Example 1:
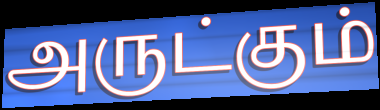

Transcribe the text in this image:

அருட்கும்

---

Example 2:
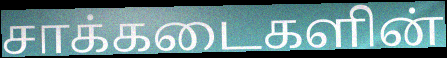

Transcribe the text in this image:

சாக்கடைகளின்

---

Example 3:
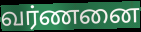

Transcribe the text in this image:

வர்ணனை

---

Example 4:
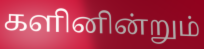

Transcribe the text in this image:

களினின்றும்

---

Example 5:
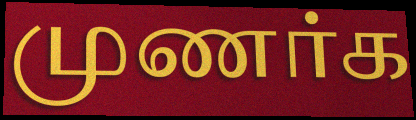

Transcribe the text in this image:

முணர்க